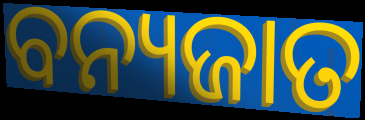
ବନ୍ୟଜାତ